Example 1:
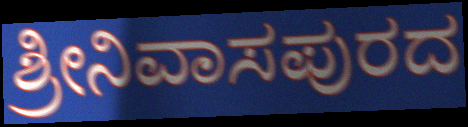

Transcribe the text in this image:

ಶ್ರೀನಿವಾಸಪುರದ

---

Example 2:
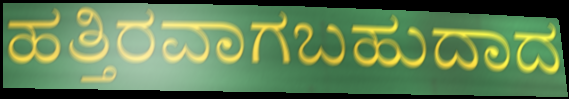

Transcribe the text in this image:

ಹತ್ತಿರವಾಗಬಹುದಾದ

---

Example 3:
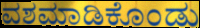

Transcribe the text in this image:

ವಶಮಾಡಿಕೊಂಡು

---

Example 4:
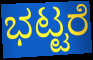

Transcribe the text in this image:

ಭಟ್ಟರೆ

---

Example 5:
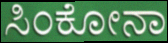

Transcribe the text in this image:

ಸಿಂಕೋನಾ